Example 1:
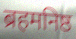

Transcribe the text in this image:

ब्रहमनिष्ठ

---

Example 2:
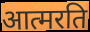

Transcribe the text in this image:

आत्मरति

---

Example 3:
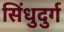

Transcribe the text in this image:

सिंधुदुर्ग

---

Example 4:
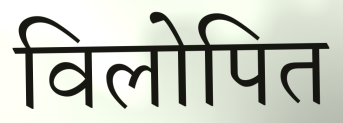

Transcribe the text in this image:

विलोपित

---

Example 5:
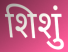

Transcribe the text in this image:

शिशुं